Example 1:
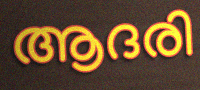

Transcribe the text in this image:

ആദരി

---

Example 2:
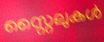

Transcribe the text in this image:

സ്റ്റൈലുകൾ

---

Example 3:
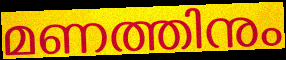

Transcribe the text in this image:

മണത്തിനും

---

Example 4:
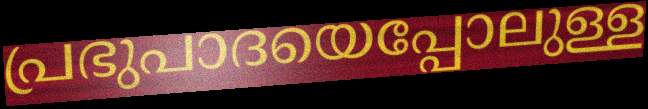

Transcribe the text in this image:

പ്രഭുപാദയെപ്പോലുള്ള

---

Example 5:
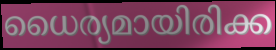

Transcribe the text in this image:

ധൈര്യമായിരിക്ക